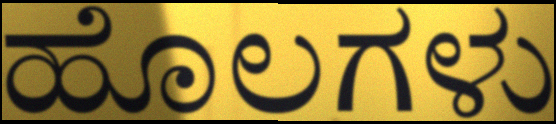
ಹೊಲಗಳು